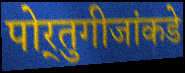
पोर्तुगीजांकडे